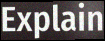
Explain